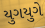
યુગયુગે